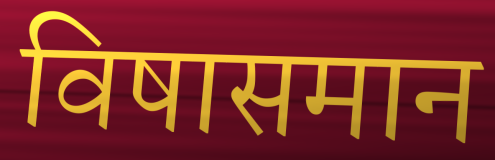
विषासमान